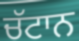
ਚੱਟਾਨ